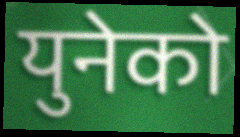
युनेको